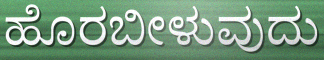
ಹೊರಬೀಳುವುದು